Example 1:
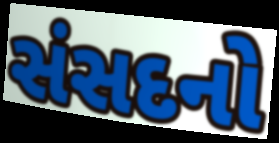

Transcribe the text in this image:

સંસદનો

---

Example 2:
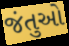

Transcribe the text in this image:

જંતુઓ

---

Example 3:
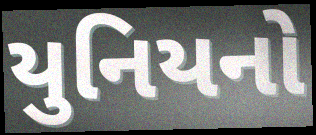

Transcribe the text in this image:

યુનિયનો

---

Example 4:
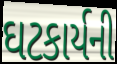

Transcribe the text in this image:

ઘટકાર્યની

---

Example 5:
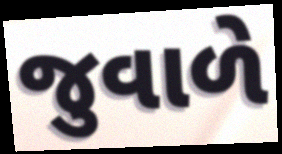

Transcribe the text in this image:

જુવાળે